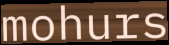
mohurs